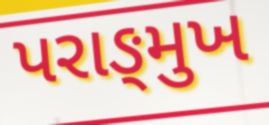
પરાઙ્મુખ